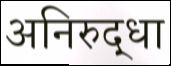
अनिरुद्धा